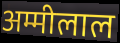
अम्मीलाल